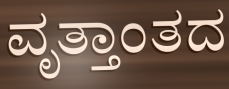
ವೃತ್ತಾಂತದ